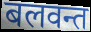
बलवन्त